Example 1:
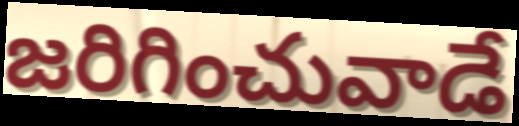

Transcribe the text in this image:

జరిగించువాడే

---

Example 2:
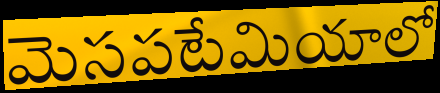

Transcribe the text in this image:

మెసపటేమియాలో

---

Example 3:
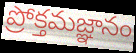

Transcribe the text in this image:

ప్రోక్తమజ్ఞానం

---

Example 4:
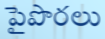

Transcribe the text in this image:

పైపొరలు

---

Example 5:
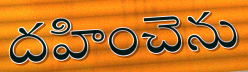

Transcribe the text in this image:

దహించెను